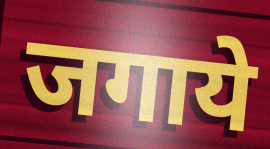
जगाये